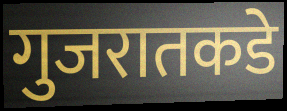
गुजरातकडे